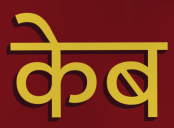
केब